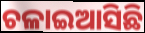
ଚଳାଇଆସିଛି